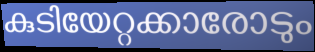
കുടിയേറ്റക്കാരോടും